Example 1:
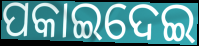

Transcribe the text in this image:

ପକାଇଦେଇ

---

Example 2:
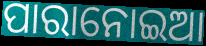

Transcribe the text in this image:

ପାରାନୋଇଆ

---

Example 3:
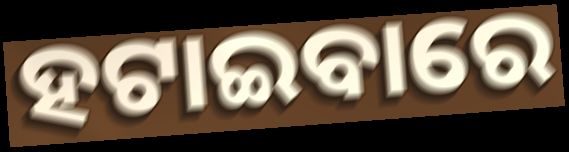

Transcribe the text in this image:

ହଟାଇବାରେ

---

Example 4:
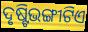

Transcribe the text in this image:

ଦୃଷ୍ଟିଭଙ୍ଗୀଟିଏ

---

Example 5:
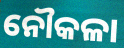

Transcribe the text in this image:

ନୌକଳା